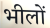
भीलों